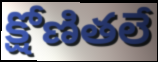
క్షోణితలే